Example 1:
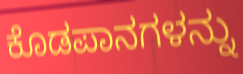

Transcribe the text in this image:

ಕೊಡಪಾನಗಳನ್ನು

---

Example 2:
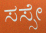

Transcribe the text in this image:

ಸಸ್ಸೇ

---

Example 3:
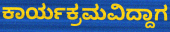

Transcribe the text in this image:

ಕಾರ್ಯಕ್ರಮವಿದ್ದಾಗ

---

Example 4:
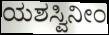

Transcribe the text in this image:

ಯಶಸ್ವಿನೀಂ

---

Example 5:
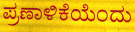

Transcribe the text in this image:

ಪ್ರಣಾಳಿಕೆಯೆಂದು